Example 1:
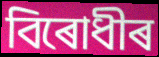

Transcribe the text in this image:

বিৰোধীৰ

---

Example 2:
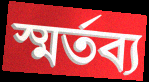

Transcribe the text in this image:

স্মৰ্তব্য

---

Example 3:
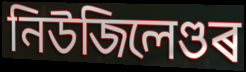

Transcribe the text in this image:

নিউজিলেণ্ডৰ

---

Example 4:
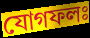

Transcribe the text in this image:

যোগফলঃ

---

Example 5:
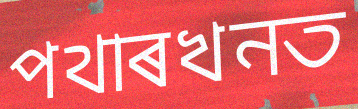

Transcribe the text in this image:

পথাৰখনত